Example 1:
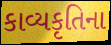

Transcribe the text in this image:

કાવ્યકૃતિના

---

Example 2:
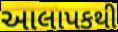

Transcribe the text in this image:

આલાપકથી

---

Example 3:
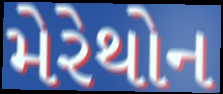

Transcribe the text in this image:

મેરેથોન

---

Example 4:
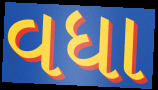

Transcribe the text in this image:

વધા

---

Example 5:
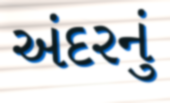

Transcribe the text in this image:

અંદરનું